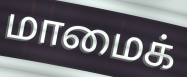
மாமைக்